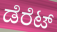
ಡೆರೆಟ್